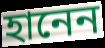
হানেন